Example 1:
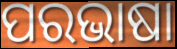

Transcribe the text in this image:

ପରଭାଷା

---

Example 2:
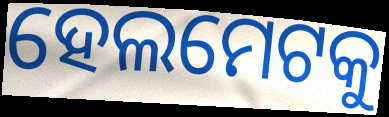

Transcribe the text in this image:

ହେଲମେଟକୁ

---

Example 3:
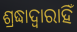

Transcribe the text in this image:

ଶ୍ରଦ୍ଧାଦ୍ୱାରାହିଁ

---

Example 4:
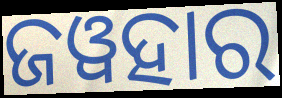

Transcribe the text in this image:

ଜୱହାର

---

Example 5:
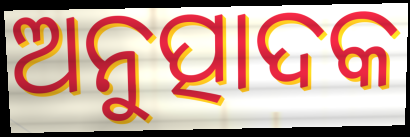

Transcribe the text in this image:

ଅନୁତ୍ପାଦକ